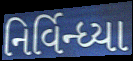
નિર્વિન્ધ્યા